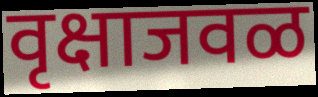
वृक्षाजवळ